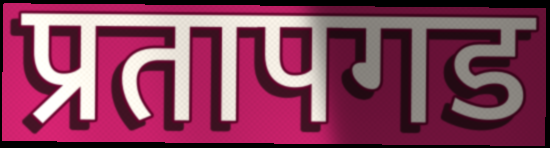
प्रतापगड